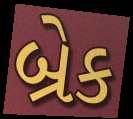
બ્રેક